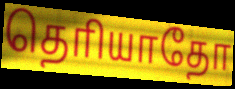
தெரியாதோ